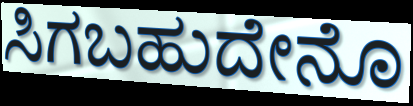
ಸಿಗಬಹುದೇನೊ